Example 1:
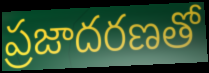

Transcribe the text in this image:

ప్రజాదరణతో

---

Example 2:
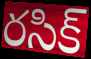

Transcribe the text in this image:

రసిక్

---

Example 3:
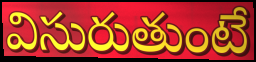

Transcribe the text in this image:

విసురుతుంటే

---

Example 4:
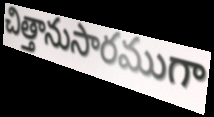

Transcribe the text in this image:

చిత్తానుసారముగా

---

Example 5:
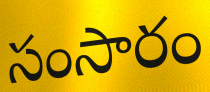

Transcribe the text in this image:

సంసారం